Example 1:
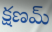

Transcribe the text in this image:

క్షణమ్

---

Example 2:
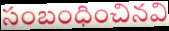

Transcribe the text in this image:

సంబంధించినవి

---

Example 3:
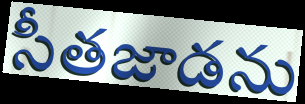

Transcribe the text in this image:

సీతజాడను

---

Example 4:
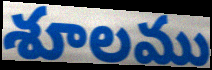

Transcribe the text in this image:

శూలము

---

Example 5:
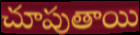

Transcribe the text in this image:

చూపుతాయి